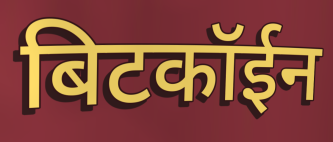
बिटकॉईन